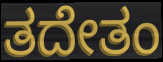
ತದೇತಂ